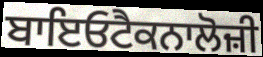
ਬਾਇਓਟੈਕਨਾਲੋਜ਼ੀ